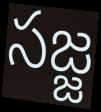
సజ్జ